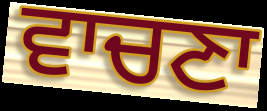
ਵਾਚਣਾ